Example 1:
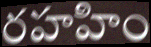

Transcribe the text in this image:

రహహిం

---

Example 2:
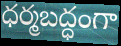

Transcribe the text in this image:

ధర్మబద్ధంగా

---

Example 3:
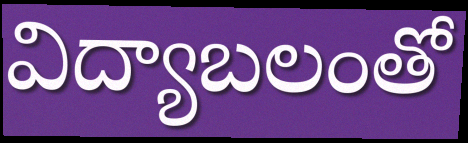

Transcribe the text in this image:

విద్యాబలంతో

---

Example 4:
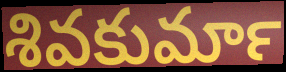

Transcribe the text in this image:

శివకుమార్‍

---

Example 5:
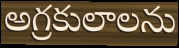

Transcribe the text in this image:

అగ్రకులాలను